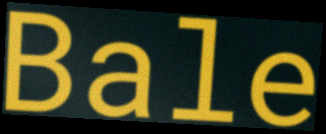
Bale